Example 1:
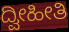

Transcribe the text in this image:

ದ್ವೀಹೀತಿ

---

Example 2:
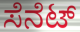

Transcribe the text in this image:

ಸೆನೆಟ್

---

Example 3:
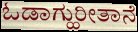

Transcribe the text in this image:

ಓಡಾಗ್ಹುರೀತಾನೆ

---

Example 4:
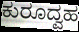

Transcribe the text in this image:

ಕುರೂದ್ವಹ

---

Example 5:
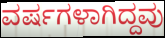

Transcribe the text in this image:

ವರ್ಷಗಳಾಗಿದ್ದವು